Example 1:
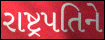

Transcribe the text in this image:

રાષ્ટ્રપતિને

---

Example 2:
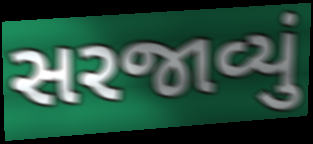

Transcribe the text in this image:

સરજાવ્યું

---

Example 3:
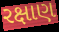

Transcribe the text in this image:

રક્ષાણ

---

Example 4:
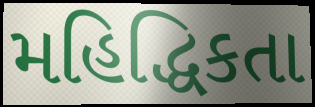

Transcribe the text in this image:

મહિદ્ધિકતા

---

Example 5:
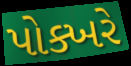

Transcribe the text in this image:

પોક્ખરે